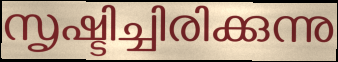
സൃഷ്ടിച്ചിരിക്കുന്നു